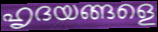
ഹൃദയങ്ങളെ